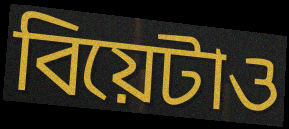
বিয়েটাও